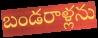
బండరాళ్లను